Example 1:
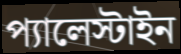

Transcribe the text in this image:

প্যালেস্টাইন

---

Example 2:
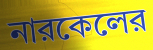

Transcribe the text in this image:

নারকেলের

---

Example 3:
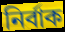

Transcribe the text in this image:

নির্বাক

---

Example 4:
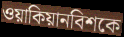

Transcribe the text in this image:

ওয়াকিয়ানবিশকে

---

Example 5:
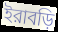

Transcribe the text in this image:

ইরাবড়ি